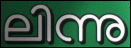
ലിന്നു